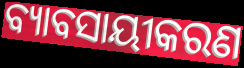
ବ୍ୟାବସାୟୀକରଣ